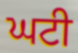
ਘਟੀ